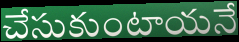
చేసుకుంటాయనే